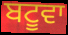
ਬਟੂਵਾ